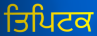
ਤਿਪਿਟਕ